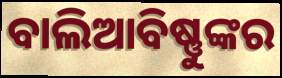
ବାଲିଆବିଷ୍ଣୁଙ୍କର